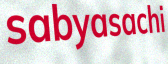
sabyasachi